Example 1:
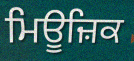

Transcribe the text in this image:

ਮਿਊਜ਼ਿਕ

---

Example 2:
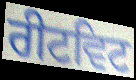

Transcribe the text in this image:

ਰੀਟਵਿਟ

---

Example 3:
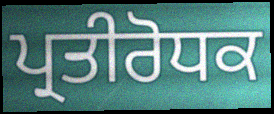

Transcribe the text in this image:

ਪ੍ਰਤੀਰੋਧਕ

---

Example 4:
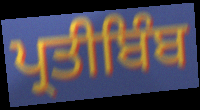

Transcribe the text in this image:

ਪ੍ਰਤੀਬਿੰਬ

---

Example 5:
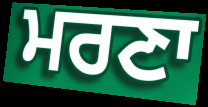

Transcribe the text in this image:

ਮਰਣਾ